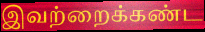
இவற்றைக்கண்ட